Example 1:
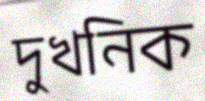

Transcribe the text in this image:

দুখনিক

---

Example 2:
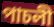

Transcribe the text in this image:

পাচলী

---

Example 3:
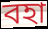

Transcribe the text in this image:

বহা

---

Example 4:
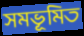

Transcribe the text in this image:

সমভূমিত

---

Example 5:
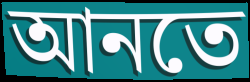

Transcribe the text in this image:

আনতে